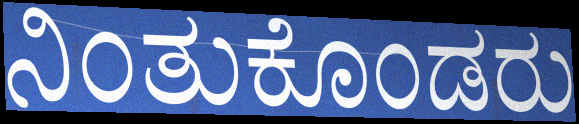
ನಿಂತುಕೊಂಡರು